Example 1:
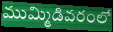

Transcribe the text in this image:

ముమ్మిడివరంలో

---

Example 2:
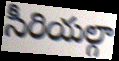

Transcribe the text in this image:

సీరియల్గా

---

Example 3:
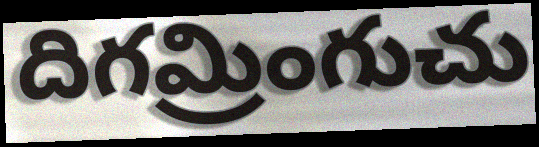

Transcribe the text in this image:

దిగమ్రింగుచు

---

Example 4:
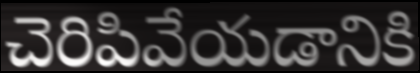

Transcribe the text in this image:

చెరిపివేయడానికి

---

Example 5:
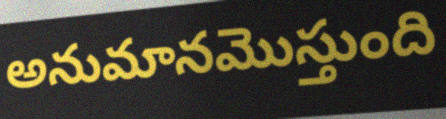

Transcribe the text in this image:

అనుమానమొస్తుంది